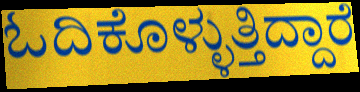
ಓದಿಕೊಳ್ಳುತ್ತಿದ್ದಾರೆ